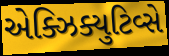
એક્ઝિક્યુટિવ્સે